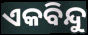
ଏକବିନ୍ଦୁ